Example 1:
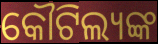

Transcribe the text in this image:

କୌଟିଲ୍ୟଙ୍କ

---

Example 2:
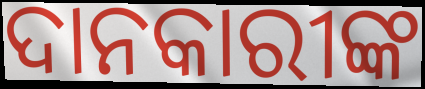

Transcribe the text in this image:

ଦାନକାରୀଙ୍କ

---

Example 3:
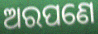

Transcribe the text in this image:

ଅରପଣେ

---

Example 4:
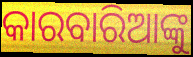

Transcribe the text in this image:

କାରବାରିଆଙ୍କୁ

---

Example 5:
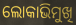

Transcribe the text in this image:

ଲୋକାଭିମୁଖି